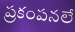
ప్రకంపనలే